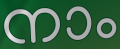
നാം